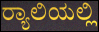
ರ‍್ಯಾಲಿಯಲ್ಲಿ